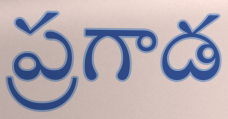
ప్రగాడ